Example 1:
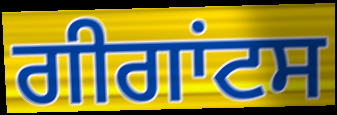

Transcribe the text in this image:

ਗੀਗਾਂਟਸ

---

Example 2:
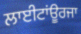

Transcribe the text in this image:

ਲਾਈਟਾਂਊਰਜਾ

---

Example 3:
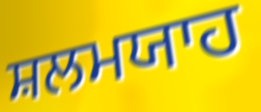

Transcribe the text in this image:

ਸ਼ਲਮਯਾਹ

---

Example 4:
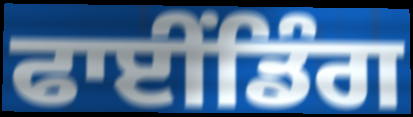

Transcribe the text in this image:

ਫਾਈਂਡਿੰਗ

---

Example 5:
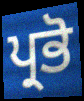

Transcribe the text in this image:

ਪ੍ਰਭੋ